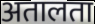
अतालता